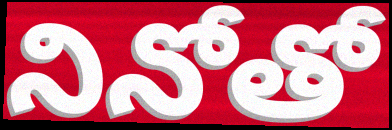
నినోతో